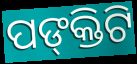
ପଙ୍‌କ୍ତିଟି